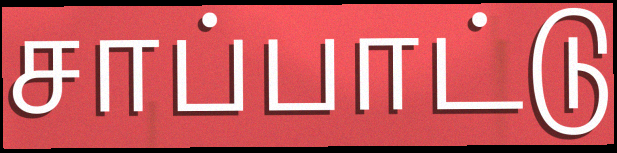
சாப்பாட்டு